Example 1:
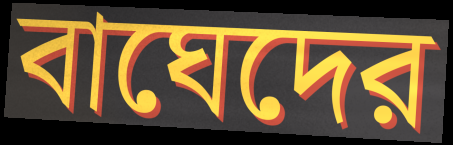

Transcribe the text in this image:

বাঘেদের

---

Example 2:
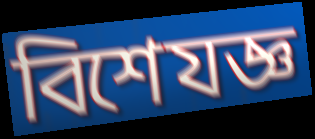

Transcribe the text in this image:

বিশেযজ্ঞ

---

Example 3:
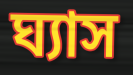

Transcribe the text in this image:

ঘ্যাস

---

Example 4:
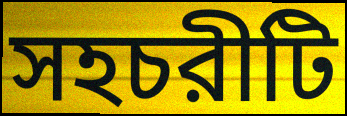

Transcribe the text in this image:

সহচরীটি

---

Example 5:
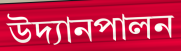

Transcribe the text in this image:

উদ্যানপালন